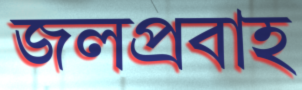
জলপ্ৰবাহ